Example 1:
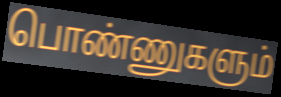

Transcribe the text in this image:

பொண்ணுகளும்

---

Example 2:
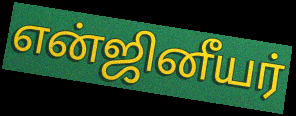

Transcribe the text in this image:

என்ஜினீயர்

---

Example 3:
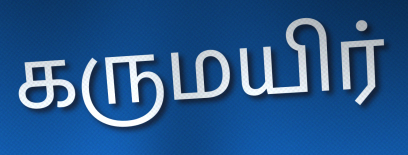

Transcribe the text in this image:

கருமயிர்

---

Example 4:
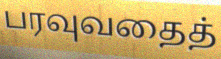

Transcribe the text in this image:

பரவுவதைத்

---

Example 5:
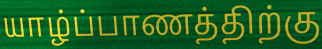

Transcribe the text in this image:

யாழ்ப்பாணத்திற்கு